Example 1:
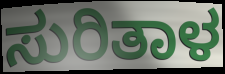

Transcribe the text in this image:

ಸುರಿತಾಳ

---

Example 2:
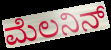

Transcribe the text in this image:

ಮೆಲನಿನ್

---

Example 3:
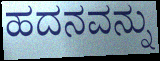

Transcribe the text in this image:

ಹದನವನ್ನು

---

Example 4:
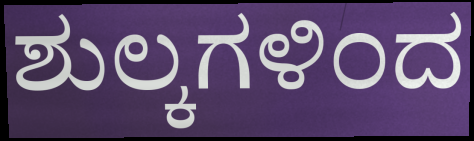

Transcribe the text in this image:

ಶುಲ್ಕಗಳಿಂದ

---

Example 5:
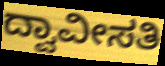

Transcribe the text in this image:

ದ್ವಾವೀಸತಿ